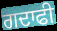
ਗਦਾਫੀ